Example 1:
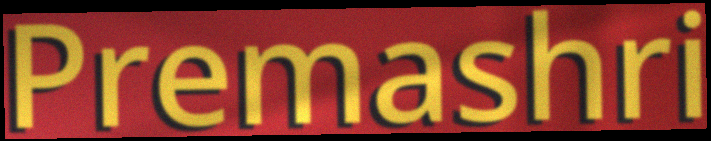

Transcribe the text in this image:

Premashri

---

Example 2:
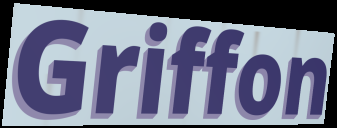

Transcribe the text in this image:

Griffon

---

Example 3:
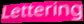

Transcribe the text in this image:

Lettering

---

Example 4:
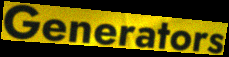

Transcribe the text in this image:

Generators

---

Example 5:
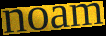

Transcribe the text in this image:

noam